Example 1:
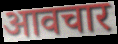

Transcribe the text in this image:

आवचार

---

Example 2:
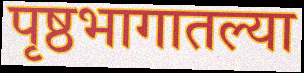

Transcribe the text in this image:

पृष्ठभागातल्या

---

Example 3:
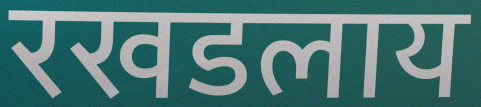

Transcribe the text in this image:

रखडलाय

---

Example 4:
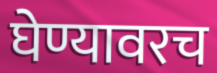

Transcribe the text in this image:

घेण्यावरच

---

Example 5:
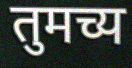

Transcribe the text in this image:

तुमच्य